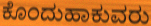
ಕೊಂದುಹಾಕುವರು